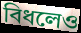
বিধলেও